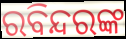
ରବିନ୍ଦରଙ୍କ